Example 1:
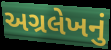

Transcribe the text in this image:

અગ્રલેખનું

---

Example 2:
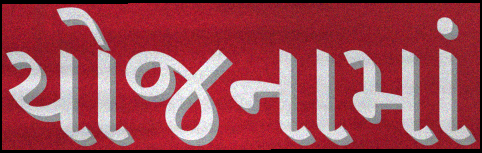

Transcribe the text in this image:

યોજનામાં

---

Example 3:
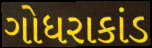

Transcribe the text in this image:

ગોધરાકાંડ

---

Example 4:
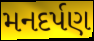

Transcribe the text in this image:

મનદર્પણ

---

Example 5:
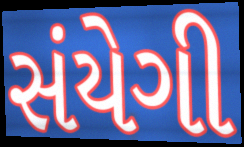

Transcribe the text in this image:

સંયેગી